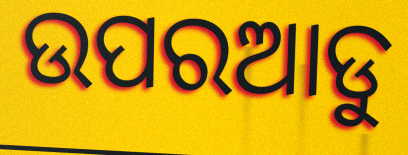
ଉପରଆଡୁ